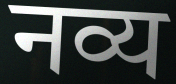
नव्य